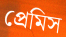
প্রেমিস